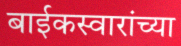
बाईकस्वारांच्या